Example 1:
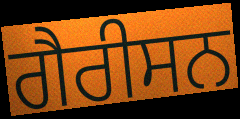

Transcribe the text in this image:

ਗੈਰੀਸਨ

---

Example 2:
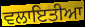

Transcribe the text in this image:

ਵਲਾਇਤੀਆ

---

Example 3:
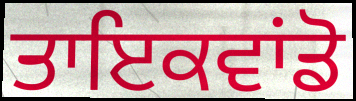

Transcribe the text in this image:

ਤਾਇਕਵਾਂਡੋ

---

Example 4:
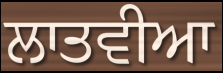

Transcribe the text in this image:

ਲਾਤਵੀਆ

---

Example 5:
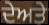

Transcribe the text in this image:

ਦੇਅਤੇ